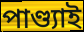
পাণ্ড্যাই